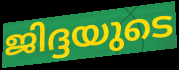
ജിദ്ദയുടെ